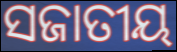
ସଜାତୀୟ